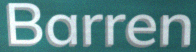
Barren